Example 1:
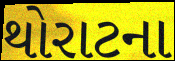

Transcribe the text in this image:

થોરાટના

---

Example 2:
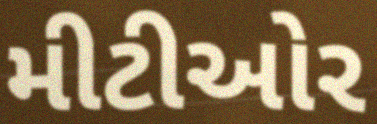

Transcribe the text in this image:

મીટીઓર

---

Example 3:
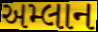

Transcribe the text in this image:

અમ્લાન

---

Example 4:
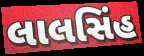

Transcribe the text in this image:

લાલસિંહ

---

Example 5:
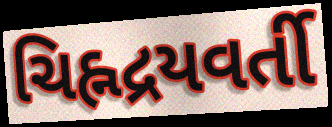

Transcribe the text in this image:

ચિહ્નદ્રયવર્તી